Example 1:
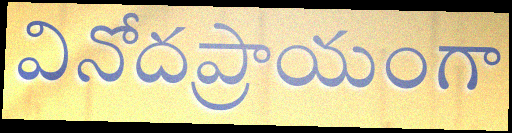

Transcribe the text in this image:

వినోదప్రాయంగా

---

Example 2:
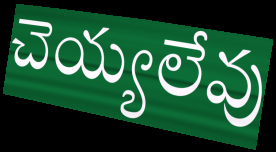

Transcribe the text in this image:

చెయ్యలేవు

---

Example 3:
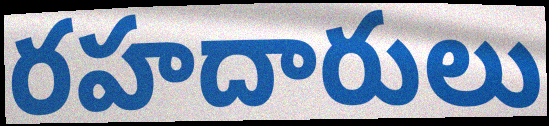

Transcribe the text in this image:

రహదారులు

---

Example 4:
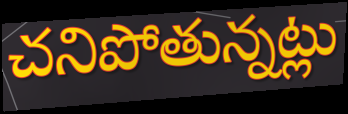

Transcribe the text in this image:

చనిపోతున్నట్లు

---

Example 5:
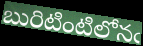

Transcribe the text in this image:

బురిటింటిలోనఁ